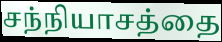
சந்நியாசத்தை